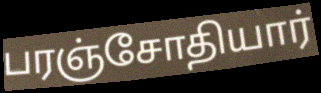
பரஞ்சோதியார்